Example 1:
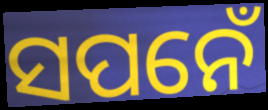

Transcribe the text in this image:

ସପନେଁ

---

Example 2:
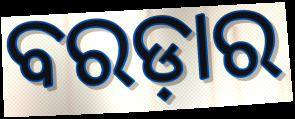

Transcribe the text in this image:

ବରଡ଼ାର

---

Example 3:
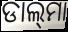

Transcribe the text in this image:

ଡାଲ୍‍ମା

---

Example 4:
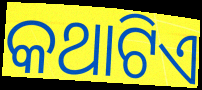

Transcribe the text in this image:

କଥାଟିଏ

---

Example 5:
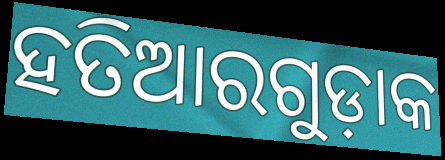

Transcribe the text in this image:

ହତିଆରଗୁଡ଼ାକ